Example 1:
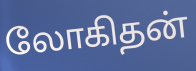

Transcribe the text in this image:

லோகிதன்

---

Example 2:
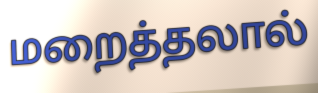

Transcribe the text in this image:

மறைத்தலால்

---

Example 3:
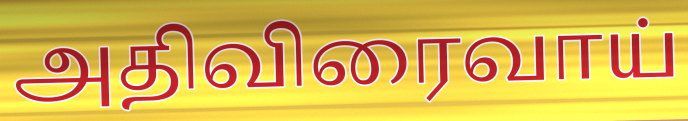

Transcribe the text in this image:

அதிவிரைவாய்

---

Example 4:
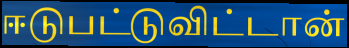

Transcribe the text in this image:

ஈடுபட்டுவிட்டான்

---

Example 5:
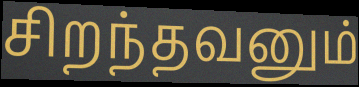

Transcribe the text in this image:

சிறந்தவனும்